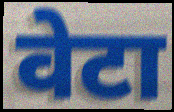
वेटा